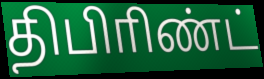
திபிரிண்ட்